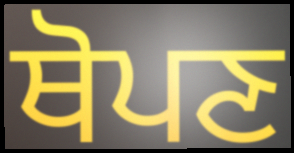
ਥੋਪਣ